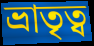
ভ্রাতৃত্ব